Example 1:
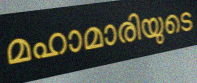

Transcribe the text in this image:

മഹാമാരിയുടെ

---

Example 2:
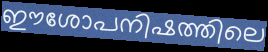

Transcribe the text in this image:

ഈശോപനിഷത്തിലെ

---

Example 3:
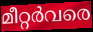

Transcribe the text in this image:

മീറ്റർവരെ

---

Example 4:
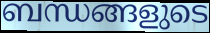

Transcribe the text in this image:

ബന്ധങ്ങളുടെ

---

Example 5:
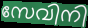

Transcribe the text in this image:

സേവിനി